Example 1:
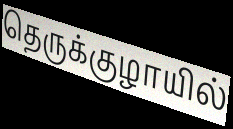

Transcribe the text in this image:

தெருக்குழாயில்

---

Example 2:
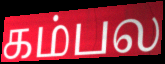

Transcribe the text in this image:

கம்பல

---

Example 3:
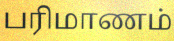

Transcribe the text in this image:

பரிமாணம்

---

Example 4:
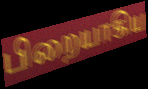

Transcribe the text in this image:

பிறையாகிய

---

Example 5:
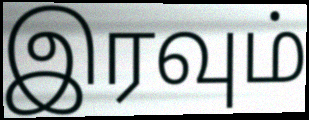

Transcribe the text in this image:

இரவும்